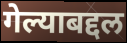
गेल्याबद्दल